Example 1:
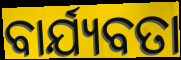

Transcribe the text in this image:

ବାର୍ଯ୍ୟବତା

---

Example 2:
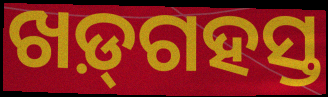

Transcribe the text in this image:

ଖଡ଼୍‌ଗହସ୍ତ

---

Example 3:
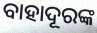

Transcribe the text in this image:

ବାହାଦୂରଙ୍କ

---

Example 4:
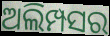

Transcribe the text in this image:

ଅଲିମ୍ପସର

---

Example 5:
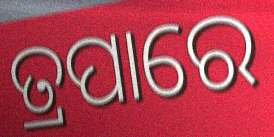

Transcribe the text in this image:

ତ୍ରପାରେ